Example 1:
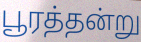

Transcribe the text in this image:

பூரத்தன்று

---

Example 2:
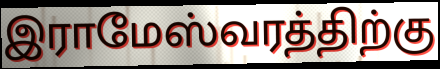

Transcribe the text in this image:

இராமேஸ்வரத்திற்கு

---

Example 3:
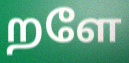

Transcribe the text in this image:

றளே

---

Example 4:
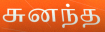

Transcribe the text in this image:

சுனந்த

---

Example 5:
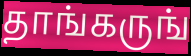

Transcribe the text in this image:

தாங்கருங்